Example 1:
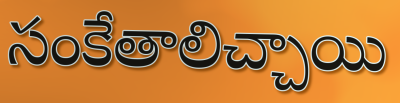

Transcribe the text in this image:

సంకేతాలిచ్చాయి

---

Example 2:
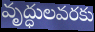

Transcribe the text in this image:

వృద్ధులవరకు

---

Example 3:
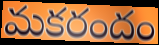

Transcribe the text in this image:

మకరందం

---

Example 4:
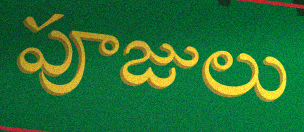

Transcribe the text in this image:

పూజులు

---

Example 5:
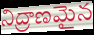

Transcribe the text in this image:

నిద్రాణమైన